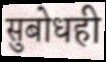
सुबोधही